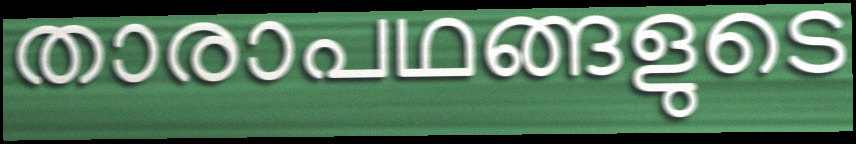
താരാപഥങ്ങളുടെ